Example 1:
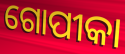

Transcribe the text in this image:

ଗୋପୀକା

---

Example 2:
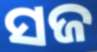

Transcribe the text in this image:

ସଜ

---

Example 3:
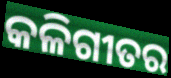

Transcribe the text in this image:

କଳିଗୀତର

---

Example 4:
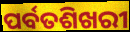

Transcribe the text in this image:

ପର୍ବତଶିଖରୀ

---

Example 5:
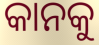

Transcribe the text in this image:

କାନକୁ